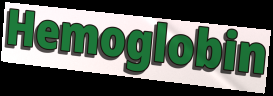
Hemoglobin